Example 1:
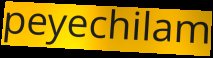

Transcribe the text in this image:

peyechilam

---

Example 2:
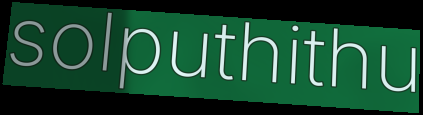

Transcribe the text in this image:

solputhithu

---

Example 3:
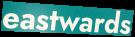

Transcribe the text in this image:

eastwards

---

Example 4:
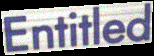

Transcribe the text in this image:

Entitled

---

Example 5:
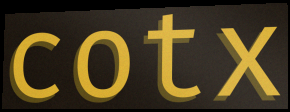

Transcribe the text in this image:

cotx